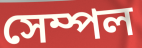
সেম্পল